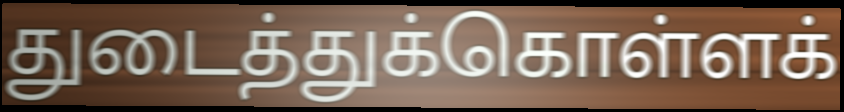
துடைத்துக்கொள்ளக்